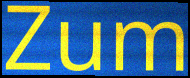
Zum